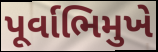
પૂર્વાભિમુખે